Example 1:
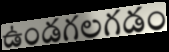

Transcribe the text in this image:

ఉండగలగడం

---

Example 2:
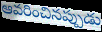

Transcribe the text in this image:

ఆవరించినప్పుడు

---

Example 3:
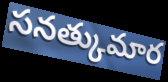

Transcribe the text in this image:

సనత్కుమార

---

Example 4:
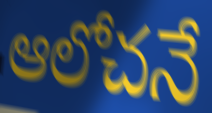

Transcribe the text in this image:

ఆలోచనే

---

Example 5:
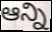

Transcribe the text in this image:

ఆన్ని